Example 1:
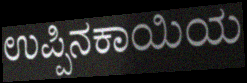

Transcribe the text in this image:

ಉಪ್ಪಿನಕಾಯಿಯ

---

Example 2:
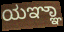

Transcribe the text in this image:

ಯಞ್ಞಾ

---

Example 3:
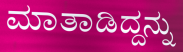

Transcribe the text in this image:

ಮಾತಾಡಿದ್ದನ್ನು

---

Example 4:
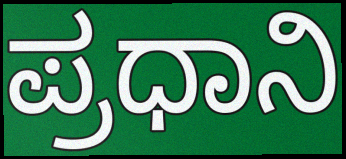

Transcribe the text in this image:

ಪ್ರಧಾನಿ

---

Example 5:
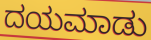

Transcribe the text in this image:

ದಯಮಾಡು